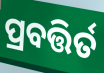
ପ୍ରବତ୍ତିର୍ତ